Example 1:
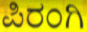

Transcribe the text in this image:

ಪಿರಂಗಿ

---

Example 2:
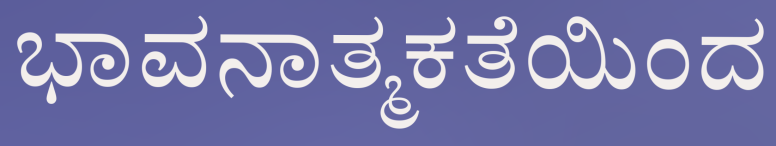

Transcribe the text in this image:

ಭಾವನಾತ್ಮಕತೆಯಿಂದ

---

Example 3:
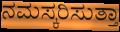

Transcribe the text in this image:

ನಮಸ್ಕರಿಸುತ್ತಾ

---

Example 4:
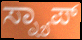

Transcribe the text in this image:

ಸ್ನ್ಯಾಪ್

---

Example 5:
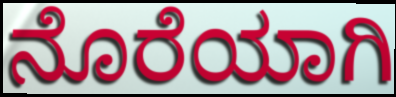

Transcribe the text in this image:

ನೊರೆಯಾಗಿ